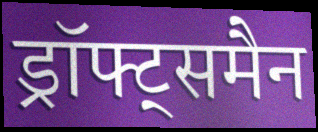
ड्रॉफ्ट्समैन